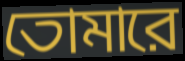
তোমারে